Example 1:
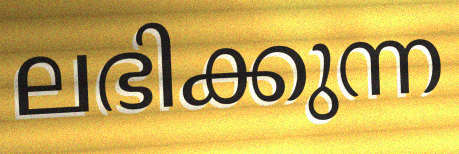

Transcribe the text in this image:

ലഭിക്കുന്ന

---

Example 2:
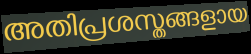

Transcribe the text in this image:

അതിപ്രശസ്തങ്ങളായ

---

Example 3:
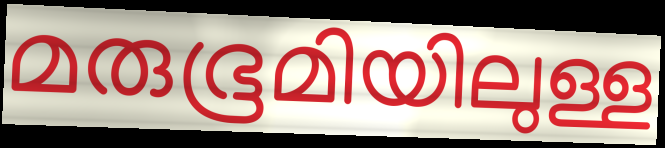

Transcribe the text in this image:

മരുഭൂമിയിലുള്ള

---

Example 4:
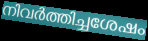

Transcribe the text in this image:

നിവർത്തിച്ചശേഷം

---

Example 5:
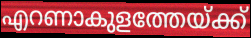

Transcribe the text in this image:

എറണാകുളത്തേയ്ക്ക്